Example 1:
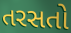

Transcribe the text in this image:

તરસતો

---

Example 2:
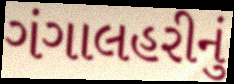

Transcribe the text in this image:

ગંગાલહરીનું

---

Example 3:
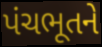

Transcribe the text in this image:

પંચભૂતને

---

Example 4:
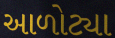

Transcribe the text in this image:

આળોટ્યા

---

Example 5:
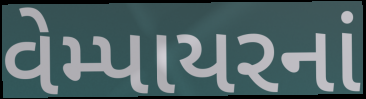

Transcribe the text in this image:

વેમ્પાયરનાં